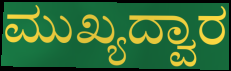
ಮುಖ್ಯದ್ವಾರ